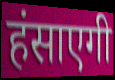
हंसाएगी